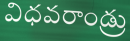
విధవరాండ్రు